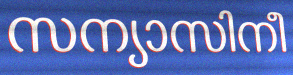
സന്യാസിനീ